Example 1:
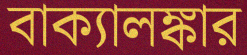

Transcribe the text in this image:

বাক্যালঙ্কার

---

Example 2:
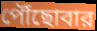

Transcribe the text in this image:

পৌঁছোবার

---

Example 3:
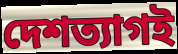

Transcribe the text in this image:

দেশত্যাগই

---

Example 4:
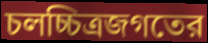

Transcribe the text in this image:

চলচ্চিত্রজগতের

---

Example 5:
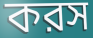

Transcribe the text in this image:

করস